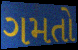
ગમતો